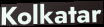
Kolkatar